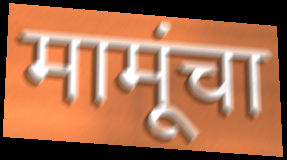
मामूंचा